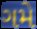
ગમે